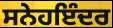
ਸਨੇਹਇੰਦਰ